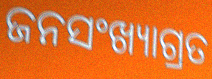
ଜନସଂଖ୍ୟାଗ୍ରତ